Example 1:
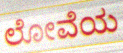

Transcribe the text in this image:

ಲೋವೆಯ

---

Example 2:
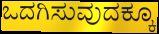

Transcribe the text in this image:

ಒದಗಿಸುವುದಕ್ಕೂ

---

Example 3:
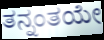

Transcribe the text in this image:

ತನ್ನಂತಯೇ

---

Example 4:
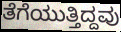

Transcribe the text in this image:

ತೆಗೆಯುತ್ತಿದ್ದವು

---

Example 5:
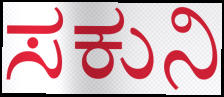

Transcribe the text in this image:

ಸಕುನಿ